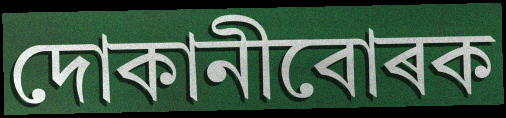
দোকানীবোৰক